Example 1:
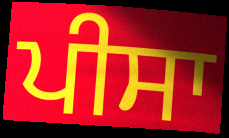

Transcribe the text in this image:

ਪੀਸਾ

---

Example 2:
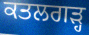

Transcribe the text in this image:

ਕਤਲਗੜ੍ਹ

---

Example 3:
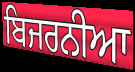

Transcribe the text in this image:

ਬਿਜਰਨੀਆ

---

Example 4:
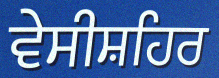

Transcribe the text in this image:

ਵੇਸੀਸ਼ਹਿਰ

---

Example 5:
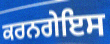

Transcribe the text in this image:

ਕਰਨਗੇਇਸ